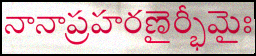
నానాప్రహరణైర్భీమైః